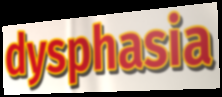
dysphasia